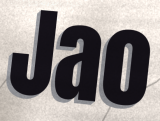
Jao